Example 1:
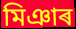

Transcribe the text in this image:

মিঞাৰ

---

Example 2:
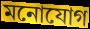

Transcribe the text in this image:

মনোযোগ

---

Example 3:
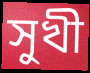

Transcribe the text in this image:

সুখী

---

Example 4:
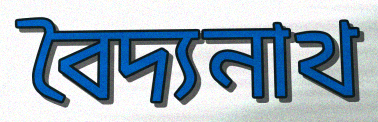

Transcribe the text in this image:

বৈদ্যনাথ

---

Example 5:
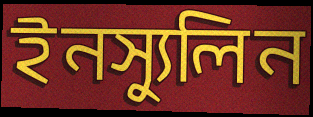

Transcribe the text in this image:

ইনস্যুলিন